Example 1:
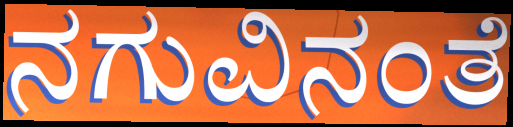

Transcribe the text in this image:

ನಗುವಿನಂತೆ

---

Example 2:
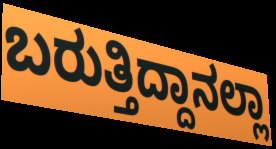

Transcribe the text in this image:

ಬರುತ್ತಿದ್ದಾನಲ್ಲಾ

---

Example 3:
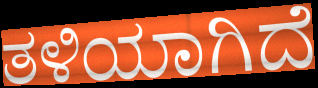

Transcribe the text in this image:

ತಳಿಯಾಗಿದೆ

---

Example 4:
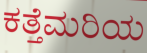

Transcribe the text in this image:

ಕತ್ತೆಮರಿಯ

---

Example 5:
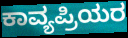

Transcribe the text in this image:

ಕಾವ್ಯಪ್ರಿಯರ